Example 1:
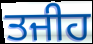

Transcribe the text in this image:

ਤਜੀਹ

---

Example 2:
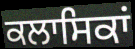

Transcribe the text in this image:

ਕਲਾਸਿਕਾਂ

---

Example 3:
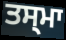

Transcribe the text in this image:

ਤਸ੍ਮਾ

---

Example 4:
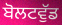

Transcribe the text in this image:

ਬੋਲਟਵੁੱਡ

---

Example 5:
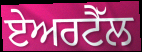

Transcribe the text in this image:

ਏਅਰਟੈੱਲ